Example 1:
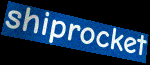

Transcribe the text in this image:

shiprocket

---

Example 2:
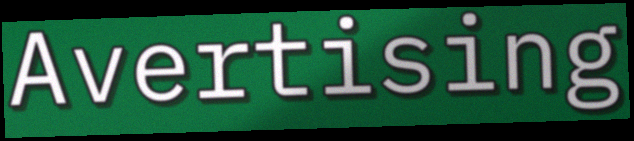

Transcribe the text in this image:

Avertising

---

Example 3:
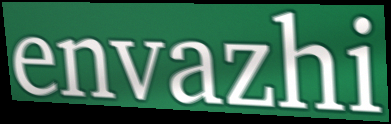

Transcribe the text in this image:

envazhi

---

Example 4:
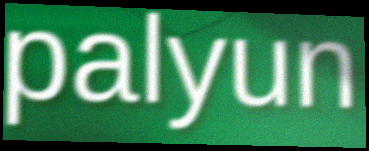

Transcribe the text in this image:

palyun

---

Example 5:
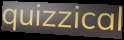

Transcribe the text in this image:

quizzical